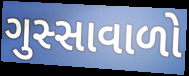
ગુસ્સાવાળો